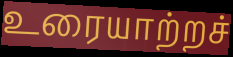
உரையாற்றச்